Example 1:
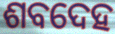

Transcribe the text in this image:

ଶବଦେହ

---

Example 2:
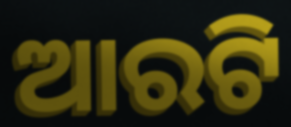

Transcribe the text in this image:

ଆରଟି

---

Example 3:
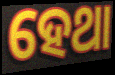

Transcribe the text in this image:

ହେଥା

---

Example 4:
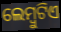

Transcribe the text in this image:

ଲେମ୍ବୁଟିଏ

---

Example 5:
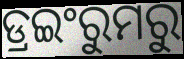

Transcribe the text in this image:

ଡ୍ରଇଂରୁମରୁ